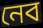
নেব